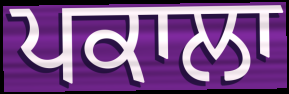
ਪਕਾਲਾ